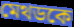
মেথডকে